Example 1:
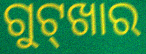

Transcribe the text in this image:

ଗୁଟ୍‌ଖାର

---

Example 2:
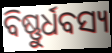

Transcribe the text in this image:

ବିଷ୍ଣୁର୍ଧବସ୍ୟ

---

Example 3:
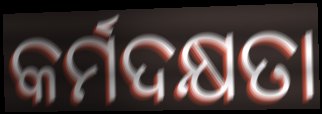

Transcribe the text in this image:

କର୍ମଦକ୍ଷତା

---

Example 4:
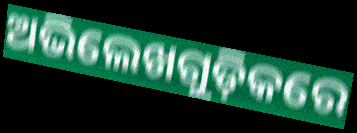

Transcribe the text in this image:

ଅଭିଲେଖଗୁଡ଼ିକରେ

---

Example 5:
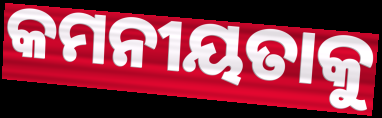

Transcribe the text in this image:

କମନୀୟତାକୁ